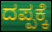
ದಪ್ಪಕ್ಕೆ